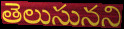
తెలుసునని